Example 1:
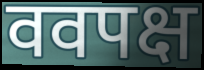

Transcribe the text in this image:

ववपक्ष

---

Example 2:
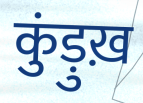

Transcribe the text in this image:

कुंड़ुख़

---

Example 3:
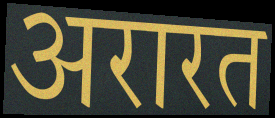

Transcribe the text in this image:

अरारत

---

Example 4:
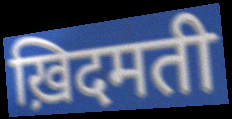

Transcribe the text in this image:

ख़िदमती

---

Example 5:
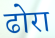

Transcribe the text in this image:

ढोरा